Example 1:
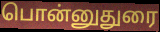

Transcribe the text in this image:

பொன்னுதுரை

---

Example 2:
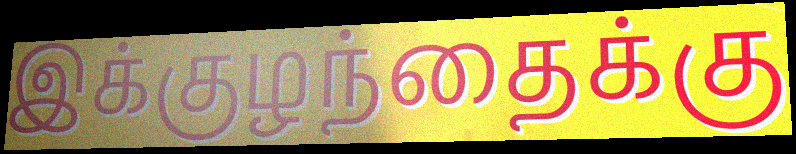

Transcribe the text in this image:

இக்குழந்தைக்கு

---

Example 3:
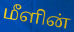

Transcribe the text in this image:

மீளின்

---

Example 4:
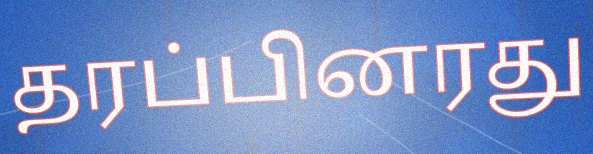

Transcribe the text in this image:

தரப்பினரது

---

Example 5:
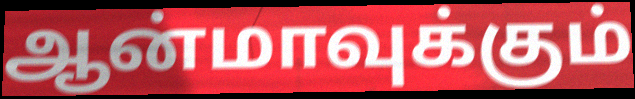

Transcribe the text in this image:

ஆன்மாவுக்கும்